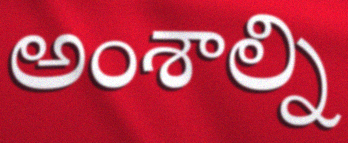
అంశాల్ని